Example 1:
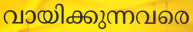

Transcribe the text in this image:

വായിക്കുന്നവരെ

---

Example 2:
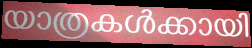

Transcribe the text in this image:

യാത്രകൾക്കായി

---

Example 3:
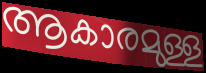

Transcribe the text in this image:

ആകാരമുള്ള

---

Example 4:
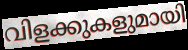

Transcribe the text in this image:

വിളക്കുകളുമായി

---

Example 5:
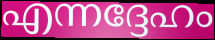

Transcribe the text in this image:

എന്നദ്ദേഹം